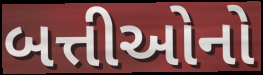
બત્તીઓનો